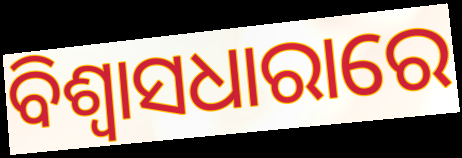
ବିଶ୍ଵାସଧାରାରେ